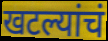
खटल्यांचं